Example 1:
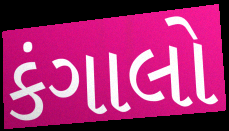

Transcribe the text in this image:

કંગાલો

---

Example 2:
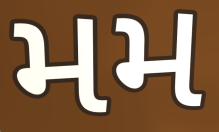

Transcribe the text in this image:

મમ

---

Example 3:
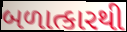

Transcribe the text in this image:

બળાત્કારથી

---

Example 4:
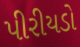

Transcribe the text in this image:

પીરીયડો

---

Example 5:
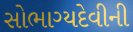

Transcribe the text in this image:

સોભાગ્યદેવીની